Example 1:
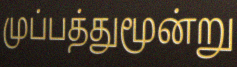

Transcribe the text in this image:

முப்பத்துமூன்று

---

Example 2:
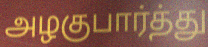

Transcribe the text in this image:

அழகுபார்த்து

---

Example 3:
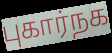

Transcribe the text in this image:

புகார்நக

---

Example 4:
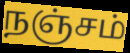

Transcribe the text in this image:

நஞ்சம்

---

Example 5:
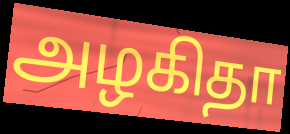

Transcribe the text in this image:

அழகிதா